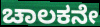
ಚಾಲಕನೇ